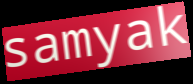
samyak